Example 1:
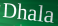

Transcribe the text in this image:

Dhala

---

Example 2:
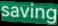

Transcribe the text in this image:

saving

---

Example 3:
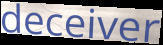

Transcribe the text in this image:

deceiver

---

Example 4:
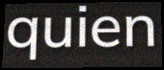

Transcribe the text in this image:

quien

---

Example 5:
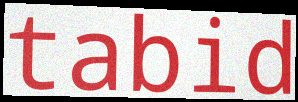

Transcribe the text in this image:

tabid